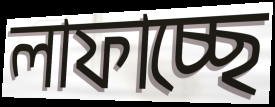
লাফাচ্ছে